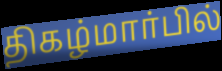
திகழ்மார்பில்